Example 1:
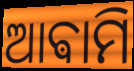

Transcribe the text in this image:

ଆଵାମି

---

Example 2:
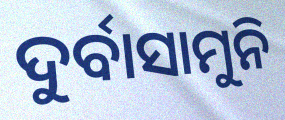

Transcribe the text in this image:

ଦୁର୍ବାସାମୁନି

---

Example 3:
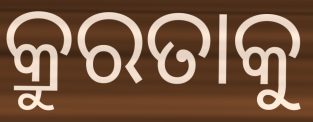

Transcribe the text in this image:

କ୍ରୁରତାକୁ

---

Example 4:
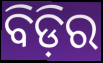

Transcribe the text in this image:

ବିଡ଼ିର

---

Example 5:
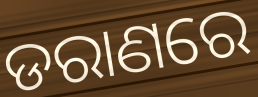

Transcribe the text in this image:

ଡରାଣରେ